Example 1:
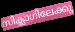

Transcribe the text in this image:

സിക്ലാഗിലേക്കു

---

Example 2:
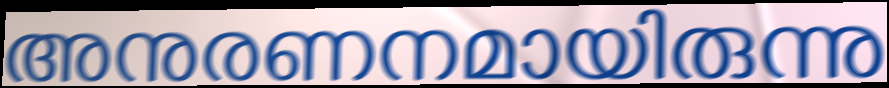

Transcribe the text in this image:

അനുരണനമായിരുന്നു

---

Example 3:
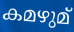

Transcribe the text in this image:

കമഴുമ്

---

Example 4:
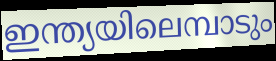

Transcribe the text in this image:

ഇന്ത്യയിലെമ്പാടും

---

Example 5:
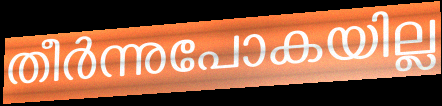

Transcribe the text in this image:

തീർന്നുപോകയില്ല